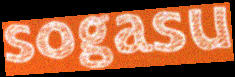
sogasu